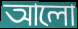
আলো